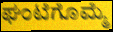
ಘಂಟೆಗೊಮ್ಮೆ